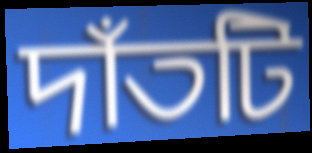
দাঁতটি